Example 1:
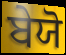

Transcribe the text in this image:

ਬੇਯੋ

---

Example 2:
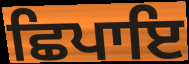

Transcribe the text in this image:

ਛਿਪਾਇ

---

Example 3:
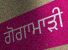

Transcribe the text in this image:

ਗੋਗਾਮਾੜੀ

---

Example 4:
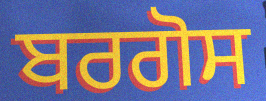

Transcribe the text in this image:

ਬਰਗੋਸ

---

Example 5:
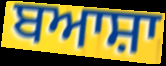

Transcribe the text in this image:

ਬਆਸ਼ਾ